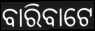
ବାରିବାଟେ